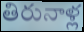
తిరునాళ్ల